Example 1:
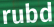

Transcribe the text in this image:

rubd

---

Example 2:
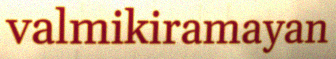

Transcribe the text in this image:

valmikiramayan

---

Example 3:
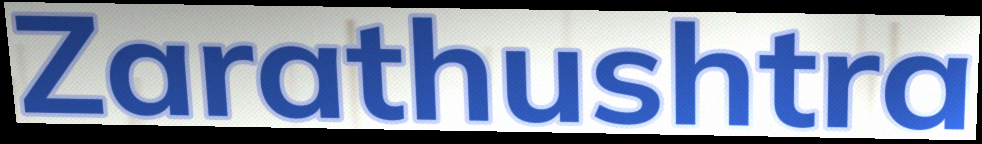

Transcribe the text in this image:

Zarathushtra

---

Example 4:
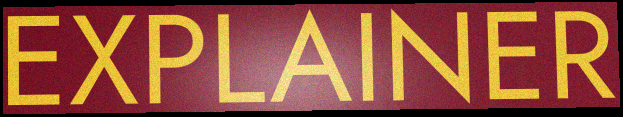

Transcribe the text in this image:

EXPLAINER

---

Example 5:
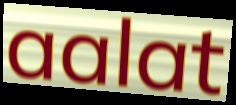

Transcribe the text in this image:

aalat